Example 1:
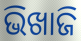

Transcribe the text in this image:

ଭିଖାଜି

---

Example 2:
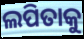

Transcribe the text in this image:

ଲପିତାକୁ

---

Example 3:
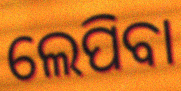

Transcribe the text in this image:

ଲେପିବା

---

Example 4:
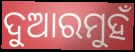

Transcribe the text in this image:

ଦୁଆରମୁହଁ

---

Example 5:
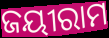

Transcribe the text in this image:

ଜୟୀରାମ